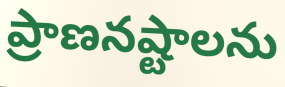
ప్రాణనష్టాలను